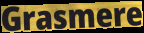
Grasmere